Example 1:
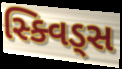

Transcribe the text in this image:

સ્ક્વિડ્સ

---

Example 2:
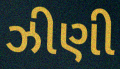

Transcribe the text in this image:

ઝીણી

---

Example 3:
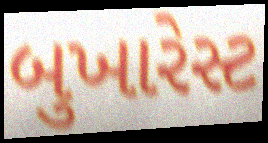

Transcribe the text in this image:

બુખારેસ્ટ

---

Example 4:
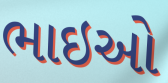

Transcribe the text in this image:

ભાઇઓ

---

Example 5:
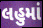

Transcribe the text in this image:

લહુમાં